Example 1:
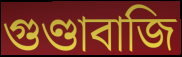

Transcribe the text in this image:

গুণ্ডাবাজি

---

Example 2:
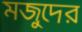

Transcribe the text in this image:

মজুদের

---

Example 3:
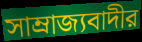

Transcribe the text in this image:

সাম্রাজ্যবাদীর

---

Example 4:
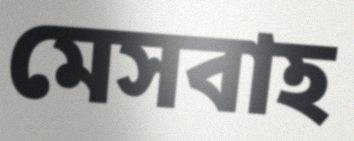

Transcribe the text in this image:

মেসবাহ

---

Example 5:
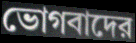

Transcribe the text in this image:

ভোগবাদের